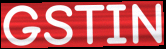
GSTIN